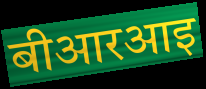
बीआरआइ